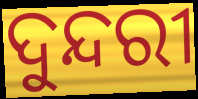
ଦୁନ୍ଦରୀ